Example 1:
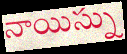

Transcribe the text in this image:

నాయిస్ను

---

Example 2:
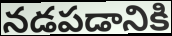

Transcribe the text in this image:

నడపడానికి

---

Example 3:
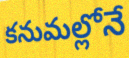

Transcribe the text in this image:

కనుమల్లోనే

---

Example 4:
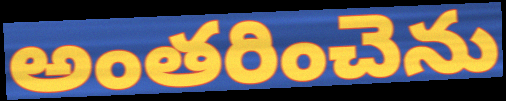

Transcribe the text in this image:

అంతరించెను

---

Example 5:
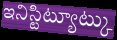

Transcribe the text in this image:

ఇనిస్టిట్యూట్కు